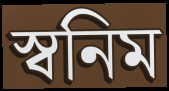
স্বনিম